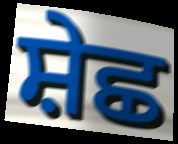
ਸ਼ੇਛ